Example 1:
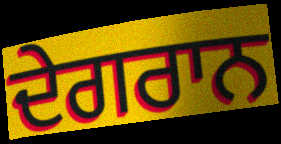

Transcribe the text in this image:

ਦੇਗਰਾਨ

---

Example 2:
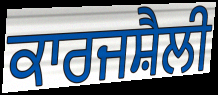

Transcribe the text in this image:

ਕਾਰਜਸ਼ੈਲੀ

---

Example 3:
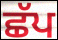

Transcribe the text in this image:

ਛੱਪ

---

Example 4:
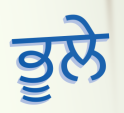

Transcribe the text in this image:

ਭੂਲੇ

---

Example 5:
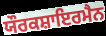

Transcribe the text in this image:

ਯੌਰਕਸ਼ਾਇਰਮੈਨ